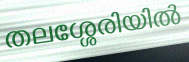
തലശ്ശേരിയിൽ